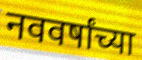
नववर्षांच्या